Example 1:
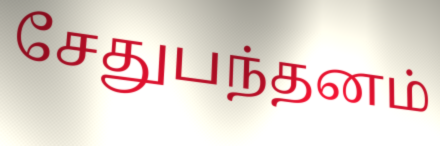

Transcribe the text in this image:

சேதுபந்தனம்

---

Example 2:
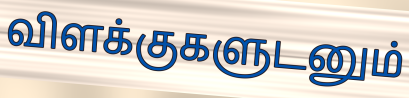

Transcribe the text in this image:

விளக்குகளுடனும்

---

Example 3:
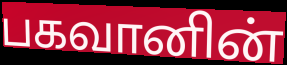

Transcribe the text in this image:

பகவானின்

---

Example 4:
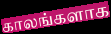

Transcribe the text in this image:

காலங்களாக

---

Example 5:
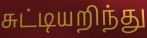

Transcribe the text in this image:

சுட்டியறிந்து